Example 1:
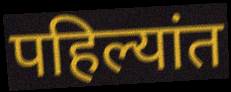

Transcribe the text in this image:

पहिल्यांत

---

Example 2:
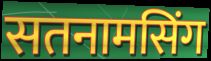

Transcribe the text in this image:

सतनामसिंग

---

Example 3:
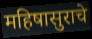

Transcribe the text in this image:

महिषासुराचे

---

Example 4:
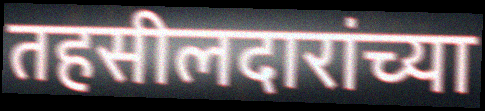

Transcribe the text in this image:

तहसीलदारांच्या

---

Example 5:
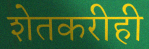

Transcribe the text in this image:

शेतकरीही